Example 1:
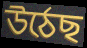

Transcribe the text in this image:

উঠেছ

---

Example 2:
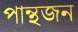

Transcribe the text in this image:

পান্থজন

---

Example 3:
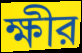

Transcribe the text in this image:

ক্ষীর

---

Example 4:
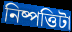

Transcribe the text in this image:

নিষ্পত্তিটা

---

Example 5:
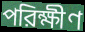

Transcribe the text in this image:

পরিক্ষীণ